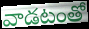
వాడటంతో